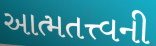
આત્મતત્ત્વની